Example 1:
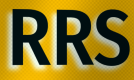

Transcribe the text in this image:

RRS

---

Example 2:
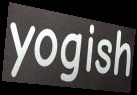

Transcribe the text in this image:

yogish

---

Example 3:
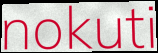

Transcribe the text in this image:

nokuti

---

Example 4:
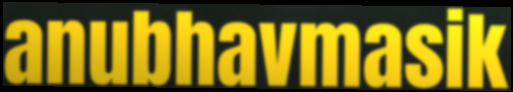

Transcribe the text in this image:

anubhavmasik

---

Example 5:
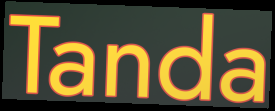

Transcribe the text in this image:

Tanda